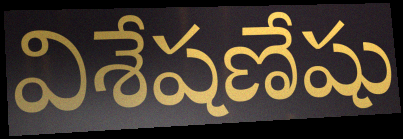
విశేషణేషు